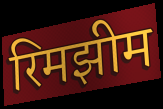
रिमझीम